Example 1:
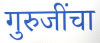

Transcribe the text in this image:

गुरुजींचा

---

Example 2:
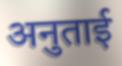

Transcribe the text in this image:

अनुताई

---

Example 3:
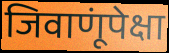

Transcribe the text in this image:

जिवाणूंपेक्षा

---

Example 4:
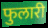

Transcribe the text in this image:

फुलारी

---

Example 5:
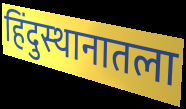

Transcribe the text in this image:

हिंदुस्थानातला